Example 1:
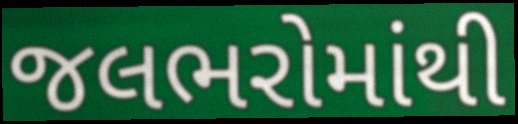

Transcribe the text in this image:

જલભરોમાંથી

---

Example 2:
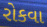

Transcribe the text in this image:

રોકવા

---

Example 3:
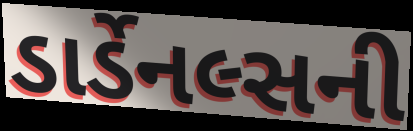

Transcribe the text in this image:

ડાર્ડેનલ્સની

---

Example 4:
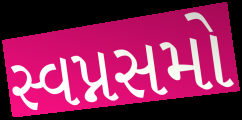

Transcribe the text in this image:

સ્વપ્નસમો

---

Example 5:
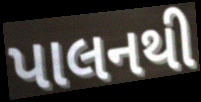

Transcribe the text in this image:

પાલનથી